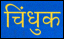
चिंधुक